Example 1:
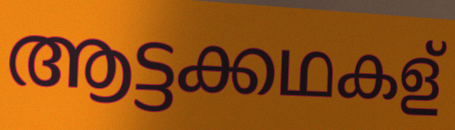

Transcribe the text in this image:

ആട്ടക്കഥകള്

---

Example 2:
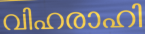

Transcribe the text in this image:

വിഹരാഹി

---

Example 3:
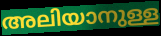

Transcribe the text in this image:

അലിയാനുള്ള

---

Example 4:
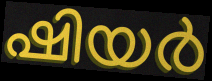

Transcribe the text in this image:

ഷിയർ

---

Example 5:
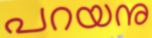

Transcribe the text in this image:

പറയനു